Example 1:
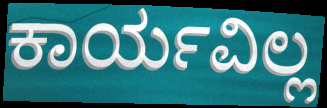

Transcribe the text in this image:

ಕಾರ್ಯವಿಲ್ಲ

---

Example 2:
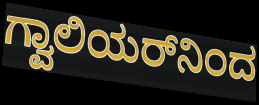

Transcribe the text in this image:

ಗ್ವಾಲಿಯರ್‌ನಿಂದ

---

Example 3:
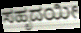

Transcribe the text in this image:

ಸಹೃದಯೀ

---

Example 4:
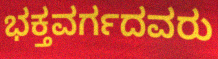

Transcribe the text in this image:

ಭಕ್ತವರ್ಗದವರು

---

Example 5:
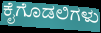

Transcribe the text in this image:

ಕೈಗೊಡಲಿಗಳು